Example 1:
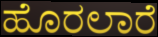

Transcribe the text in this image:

ಹೊರಲಾರೆ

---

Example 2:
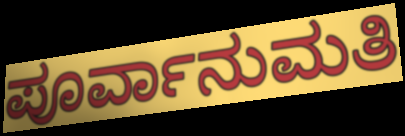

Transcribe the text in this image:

ಪೂರ್ವಾನುಮತಿ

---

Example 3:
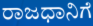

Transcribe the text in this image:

ರಾಜಧಾನಿಗೆ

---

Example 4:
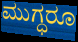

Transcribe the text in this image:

ಮುಗ್ಧರೂ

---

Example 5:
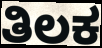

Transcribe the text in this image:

ತಿಲಕ